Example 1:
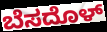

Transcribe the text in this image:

ಬೆಸದೊಳ್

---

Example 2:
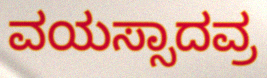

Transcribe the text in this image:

ವಯಸ್ಸಾದವ್ರ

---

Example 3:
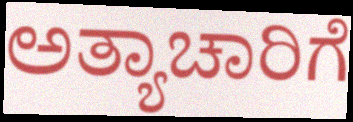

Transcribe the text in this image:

ಅತ್ಯಾಚಾರಿಗೆ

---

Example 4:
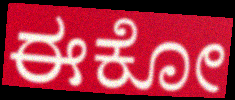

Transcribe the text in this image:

ಈಕೋ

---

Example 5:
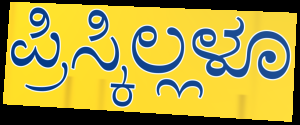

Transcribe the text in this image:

ಪ್ರಿಸ್ಕಿಲ್ಲಳೂ